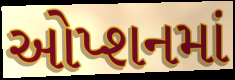
ઓપ્શનમાં